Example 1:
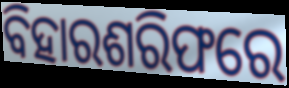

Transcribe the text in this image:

ବିହାରଶରିଫରେ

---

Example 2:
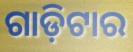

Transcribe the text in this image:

ଗାଡ଼ିଟାର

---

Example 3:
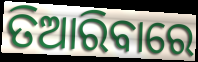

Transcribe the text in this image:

ତିଆରିବାରେ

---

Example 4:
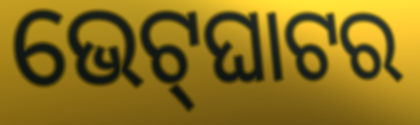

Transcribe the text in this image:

ଭେଟ୍‌ଘାଟର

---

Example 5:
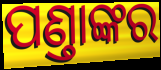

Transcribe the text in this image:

ପଣ୍ତାଙ୍କର